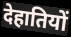
देहातियों